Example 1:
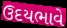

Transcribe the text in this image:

ઉદયભાવે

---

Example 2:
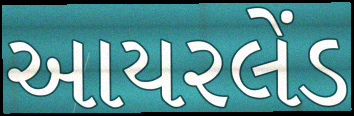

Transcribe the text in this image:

આયરલેંડ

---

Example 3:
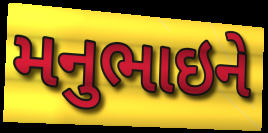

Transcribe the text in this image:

મનુભાઇને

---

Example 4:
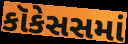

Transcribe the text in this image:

કૉકેસસમાં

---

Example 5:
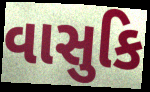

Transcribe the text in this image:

વાસુકિ